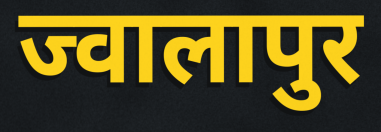
ज्वालापुर